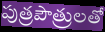
పుత్రపౌత్రులతో